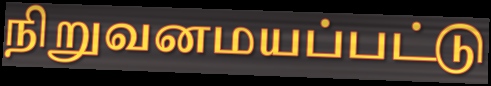
நிறுவனமயப்பட்டு